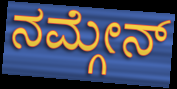
ನಮ್ಗೇನ್